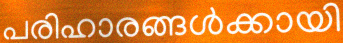
പരിഹാരങ്ങൾക്കായി